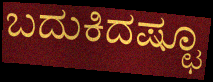
ಬದುಕಿದಷ್ಟೂ